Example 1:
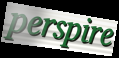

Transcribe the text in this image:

perspire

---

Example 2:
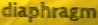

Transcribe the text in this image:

diaphragm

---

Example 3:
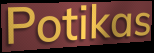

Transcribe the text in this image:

Potikas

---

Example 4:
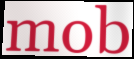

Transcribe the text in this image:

mob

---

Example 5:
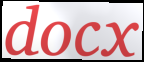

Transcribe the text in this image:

docx